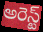
అరెస్ట్